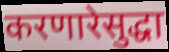
करणारेसुद्धा